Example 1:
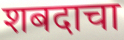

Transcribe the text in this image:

शबदाचा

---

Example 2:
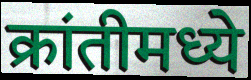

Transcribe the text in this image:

क्रांतीमध्ये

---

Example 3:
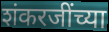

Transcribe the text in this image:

शंकरजींच्या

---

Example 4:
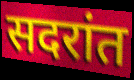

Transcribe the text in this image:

सदरांत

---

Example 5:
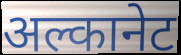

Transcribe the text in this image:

अल्कानेट